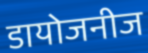
डायोजनीज